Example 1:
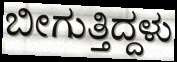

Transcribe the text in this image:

ಬೀಗುತ್ತಿದ್ದಳು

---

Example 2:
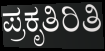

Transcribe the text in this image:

ಪ್ರಕೃತಿರಿತಿ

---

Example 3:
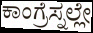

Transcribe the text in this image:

ಕಾಂಗ್ರೆಸ್ನಲ್ಲೇ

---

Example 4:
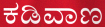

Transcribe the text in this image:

ಕಡಿವಾಣ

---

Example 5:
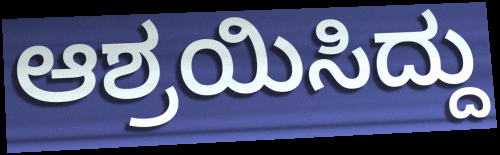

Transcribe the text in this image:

ಆಶ್ರಯಿಸಿದ್ದು